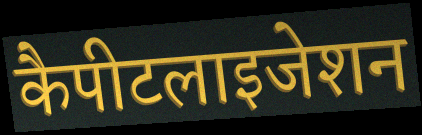
कैपीटलाइजेशन